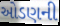
ઓડણની